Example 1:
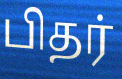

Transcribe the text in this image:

பிதர்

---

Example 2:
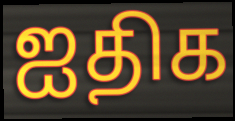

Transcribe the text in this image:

ஐதிக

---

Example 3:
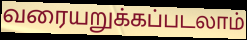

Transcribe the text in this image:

வரையறுக்கப்படலாம்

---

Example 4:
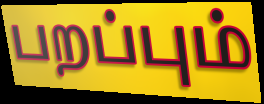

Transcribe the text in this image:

பறப்பும்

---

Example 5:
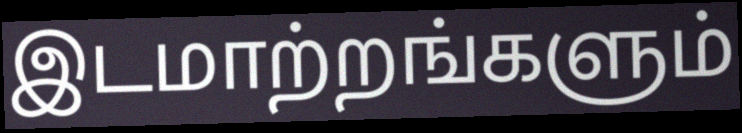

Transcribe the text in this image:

இடமாற்றங்களும்